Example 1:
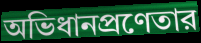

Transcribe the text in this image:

অভিধানপ্রণেতার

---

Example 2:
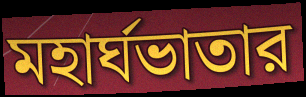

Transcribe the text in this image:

মহার্ঘভাতার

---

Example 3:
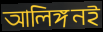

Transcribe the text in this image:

আলিঙ্গনই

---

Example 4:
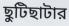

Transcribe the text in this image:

ছুটিছাটার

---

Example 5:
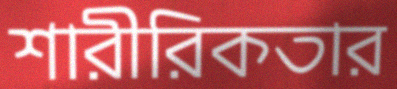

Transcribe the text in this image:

শারীরিকতার